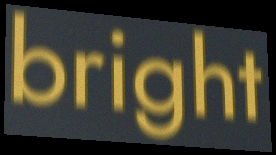
bright